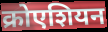
क्रोएशियन